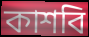
কাশবি